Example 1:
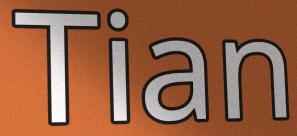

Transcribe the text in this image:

Tian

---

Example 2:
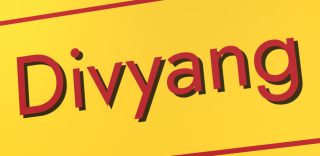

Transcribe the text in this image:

Divyang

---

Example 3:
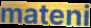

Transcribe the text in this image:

mateni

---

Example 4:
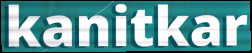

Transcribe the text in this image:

kanitkar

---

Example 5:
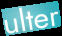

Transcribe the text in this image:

ulter